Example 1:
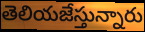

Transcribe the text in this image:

తెలియజేస్తున్నారు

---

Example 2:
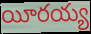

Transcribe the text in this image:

యీరయ్య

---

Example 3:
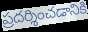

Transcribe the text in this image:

ప్రదర్శించడానికి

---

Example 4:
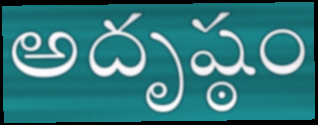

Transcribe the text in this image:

అదృష్ఠం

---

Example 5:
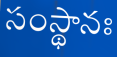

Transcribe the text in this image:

సంస్థానః